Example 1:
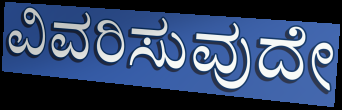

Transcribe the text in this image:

ವಿವರಿಸುವುದೇ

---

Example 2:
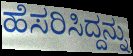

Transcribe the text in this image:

ಹೆಸರಿಸಿದ್ದನ್ನು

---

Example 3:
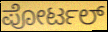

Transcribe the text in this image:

ಪೋರ್ಟಲ್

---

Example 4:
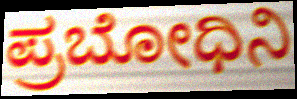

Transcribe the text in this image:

ಪ್ರಬೋಧಿನಿ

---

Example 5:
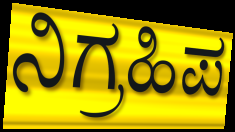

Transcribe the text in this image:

ನಿಗ್ರಹಿಪ